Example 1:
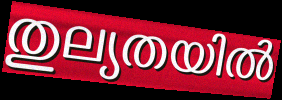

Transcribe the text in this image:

തുല്യതയിൽ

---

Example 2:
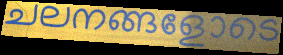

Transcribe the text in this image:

ചലനങ്ങളോടെ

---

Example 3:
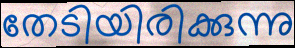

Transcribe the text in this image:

തേടിയിരിക്കുന്നു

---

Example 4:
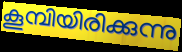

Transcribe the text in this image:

കൂമ്പിയിരിക്കുന്നു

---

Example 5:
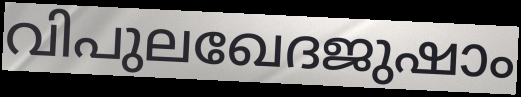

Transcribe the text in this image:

വിപുലഖേദജുഷാം